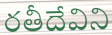
రతీదేవిని